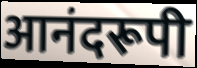
आनंदरूपी